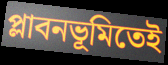
প্লাবনভূমিতেই